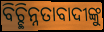
ବିଚ୍ଛିନ୍ନତାବାଦୀଙ୍କୁ